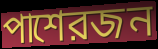
পাশেরজন